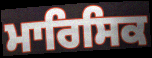
ਮਾਰਿਸਿਕ